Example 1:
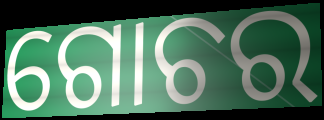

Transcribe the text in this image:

ଗୋଚର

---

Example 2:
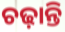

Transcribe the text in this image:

ଚଢ଼ାନ୍ତି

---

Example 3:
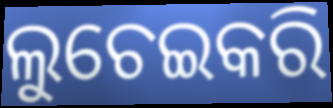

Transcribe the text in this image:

ଲୁଚେଇକରି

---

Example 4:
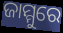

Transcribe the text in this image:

ଜାମ୍ମୁରେ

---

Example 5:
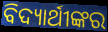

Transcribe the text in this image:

ବିଦ୍ୟାର୍ଥୀଙ୍କର